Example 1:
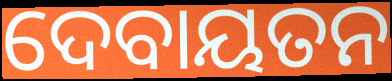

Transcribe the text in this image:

ଦେବାୟତନ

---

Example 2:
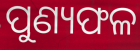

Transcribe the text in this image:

ପୁଣ୍ୟଫଳ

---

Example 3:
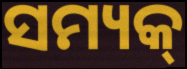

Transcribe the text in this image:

ସମ୍ୟକ୍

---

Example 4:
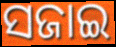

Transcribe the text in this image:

ସଜାଇ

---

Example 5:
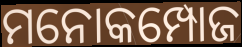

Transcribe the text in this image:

ମନୋକମ୍ପୋଜ